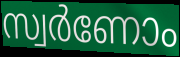
സ്വർണോം